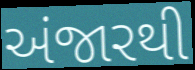
અંજારથી